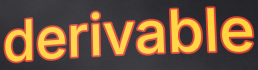
derivable